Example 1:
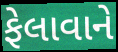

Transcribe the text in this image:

ફેલાવાને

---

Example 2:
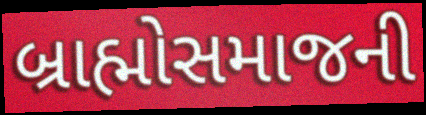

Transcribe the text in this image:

બ્રાહ્મોસમાજની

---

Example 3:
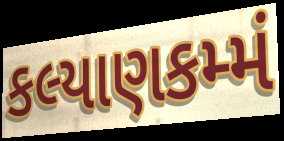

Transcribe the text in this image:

કલ્યાણકમ્મં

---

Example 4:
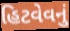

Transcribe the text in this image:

હિટવેવનું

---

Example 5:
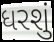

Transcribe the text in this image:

ધરશું